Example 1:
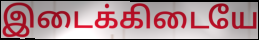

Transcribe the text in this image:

இடைக்கிடையே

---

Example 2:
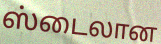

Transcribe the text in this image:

ஸ்டைலான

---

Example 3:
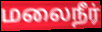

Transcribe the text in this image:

மலைநீர்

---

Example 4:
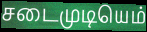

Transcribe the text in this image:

சடைமுடியெம்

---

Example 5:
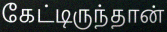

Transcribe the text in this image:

கேட்டிருந்தான்